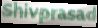
Shivprasad